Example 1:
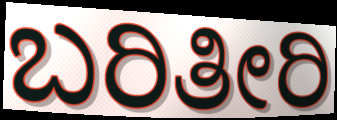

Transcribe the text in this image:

ಬರಿತೀರಿ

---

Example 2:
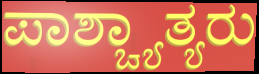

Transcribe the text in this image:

ಪಾಶ್ಚ್ಯಾತ್ಯರು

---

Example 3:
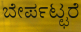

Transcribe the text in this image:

ಬೇರ್ಪಟ್ಟರೆ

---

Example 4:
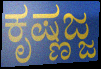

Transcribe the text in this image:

ಕೃಷ್ಣಜ್ಜ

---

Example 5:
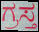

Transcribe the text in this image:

ಗ್ರಸ್ತ